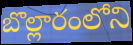
బొల్లారంలోని